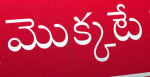
మొక్కటే